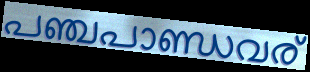
പഞ്ചപാണ്ഡവര്